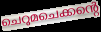
ചെറുമചെക്കന്റെ